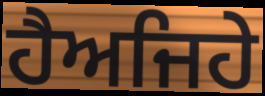
ਹੈਅਜਿਹੇ